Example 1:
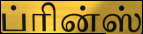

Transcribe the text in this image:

ப்ரின்ஸ்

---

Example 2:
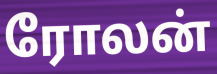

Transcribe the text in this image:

ரோலன்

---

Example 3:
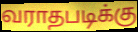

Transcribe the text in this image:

வராதபடிக்கு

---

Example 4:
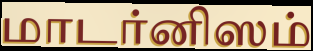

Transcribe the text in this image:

மாடர்னிஸம்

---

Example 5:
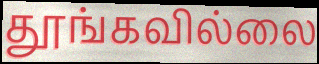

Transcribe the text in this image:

தூங்கவில்லை